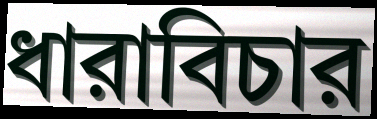
ধারাবিচার